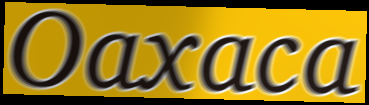
Oaxaca